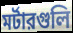
মর্টারগুলি